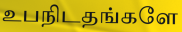
உபநிடதங்களே